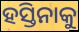
ହସ୍ତିନାକୁ